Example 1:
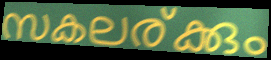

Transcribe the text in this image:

സകലര്ക്കും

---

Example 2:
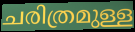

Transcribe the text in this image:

ചരിത്രമുള്ള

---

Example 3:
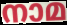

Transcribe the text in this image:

നാമ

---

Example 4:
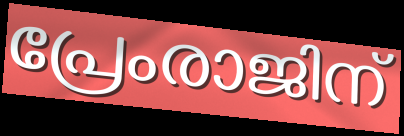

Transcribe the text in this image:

പ്രേംരാജിന്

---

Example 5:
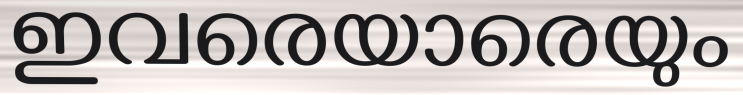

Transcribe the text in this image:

ഇവരെയാരെയും